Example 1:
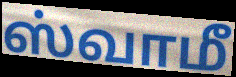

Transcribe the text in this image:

ஸ்வாமீ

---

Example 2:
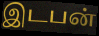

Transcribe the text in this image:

இடபன்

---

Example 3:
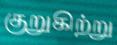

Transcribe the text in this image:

குறுகிற்று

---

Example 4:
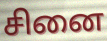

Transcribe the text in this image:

சினை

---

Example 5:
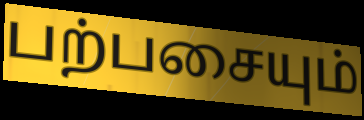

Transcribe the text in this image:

பற்பசையும்